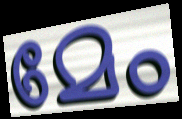
മേം